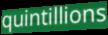
quintillions